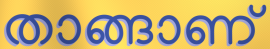
താങ്ങാണ്